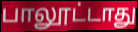
பாலூட்டாது